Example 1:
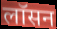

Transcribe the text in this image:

लॉसन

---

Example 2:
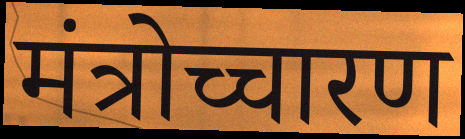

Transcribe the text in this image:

मंत्रोच्चारण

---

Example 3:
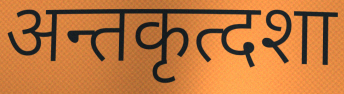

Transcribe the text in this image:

अन्तकृत्दशा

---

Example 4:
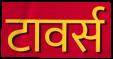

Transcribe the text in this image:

टावर्स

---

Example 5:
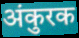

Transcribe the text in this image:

अंकुरक